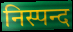
निस्पन्द